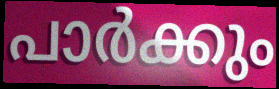
പാർക്കും